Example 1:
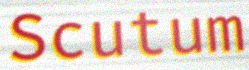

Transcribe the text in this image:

Scutum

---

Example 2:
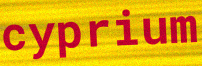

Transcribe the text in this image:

cyprium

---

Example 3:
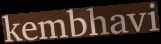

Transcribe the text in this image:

kembhavi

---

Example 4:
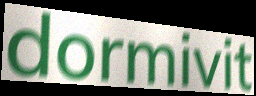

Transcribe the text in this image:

dormivit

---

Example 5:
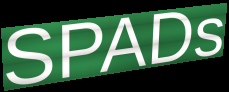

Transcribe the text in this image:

SPADs